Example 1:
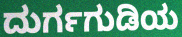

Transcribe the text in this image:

ದುರ್ಗಗುಡಿಯ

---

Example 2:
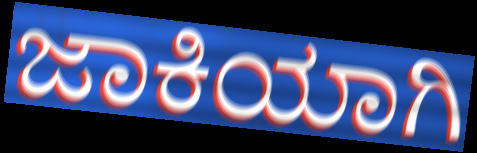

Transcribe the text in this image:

ಜಾಕಿಯಾಗಿ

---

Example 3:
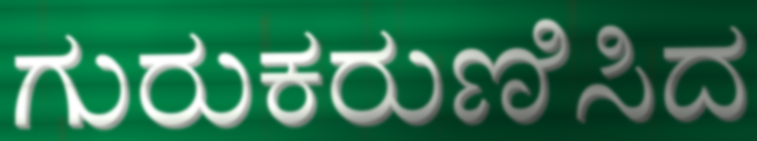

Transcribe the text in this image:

ಗುರುಕರುಣಿಸಿದ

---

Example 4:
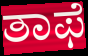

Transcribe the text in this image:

ತಾಫೆ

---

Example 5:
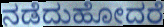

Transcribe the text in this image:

ನಡೆದುಹೋದರೆ